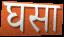
घसा